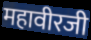
महावीरजी